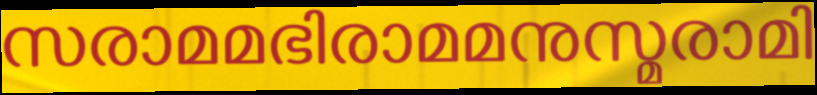
സരാമമഭിരാമമനുസ്മരാമി